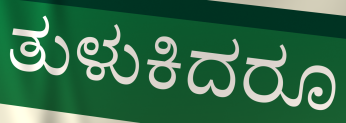
ತುಳುಕಿದರೂ